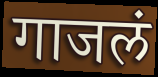
गाजलं